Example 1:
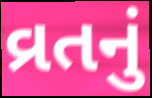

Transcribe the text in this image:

વ્રતનું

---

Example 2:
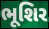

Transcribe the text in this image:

ભૂશિર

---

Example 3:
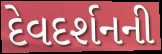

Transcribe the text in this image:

દેવદર્શનની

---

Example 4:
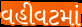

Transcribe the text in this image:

વહીવટમાં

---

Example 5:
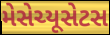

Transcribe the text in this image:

મેસેચ્યૂસેટસ